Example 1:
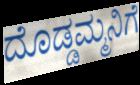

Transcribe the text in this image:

ದೊಡ್ಡಮ್ಮನಿಗೆ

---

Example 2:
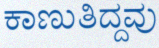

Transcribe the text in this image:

ಕಾಣುತಿದ್ದವು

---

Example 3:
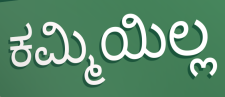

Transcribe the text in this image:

ಕಮ್ಮಿಯಿಲ್ಲ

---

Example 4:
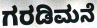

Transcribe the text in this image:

ಗರಡಿಮನೆ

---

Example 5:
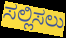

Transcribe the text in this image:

ಸಲ್ಲಿಸಲು